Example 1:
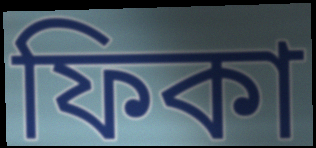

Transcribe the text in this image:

ফিকা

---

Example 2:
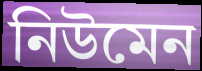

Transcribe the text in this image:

নিউমেন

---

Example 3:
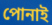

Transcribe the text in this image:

পোনাই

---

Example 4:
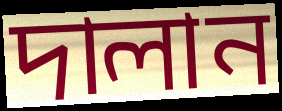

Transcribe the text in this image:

দালান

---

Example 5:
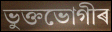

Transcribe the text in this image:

ভুক্তভোগীৰ